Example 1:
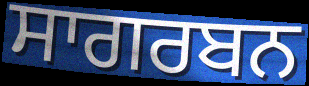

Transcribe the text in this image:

ਸਾਗਰਬਨ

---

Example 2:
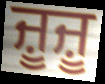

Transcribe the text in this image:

ਜ਼ੂਜ਼ੂ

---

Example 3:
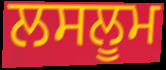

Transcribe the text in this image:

ਲਸਲੂਮ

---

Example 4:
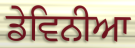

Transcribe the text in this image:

ਡੇਵਿਨੀਆ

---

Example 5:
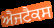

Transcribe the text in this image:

ਐਜਟੈਕਸ